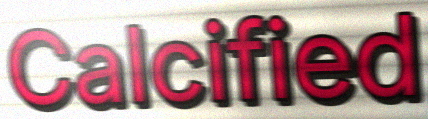
Calcified